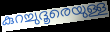
കുറച്ചുദൂരെയുള്ള